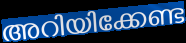
അറിയിക്കേണ്ട